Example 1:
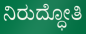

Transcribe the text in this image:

ನಿರುದ್ಧೋತಿ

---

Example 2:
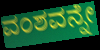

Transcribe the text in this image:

ವಂಶವನ್ನೇ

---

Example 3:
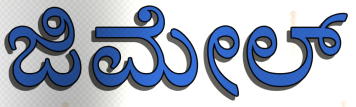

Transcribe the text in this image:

ಜಿಮೇಲ್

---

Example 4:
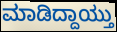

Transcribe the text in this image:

ಮಾಡಿದ್ದಾಯ್ತು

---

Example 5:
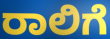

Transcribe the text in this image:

ರಾಲಿಗೆ